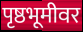
पृष्ठभूमीवर